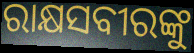
ରାକ୍ଷସବୀରଙ୍କୁ